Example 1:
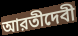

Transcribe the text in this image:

আরতীদেবী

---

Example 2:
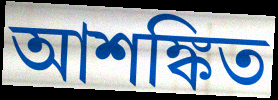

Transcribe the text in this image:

আশঙ্কিত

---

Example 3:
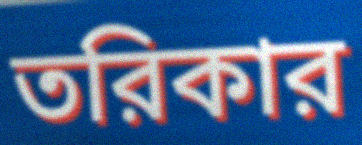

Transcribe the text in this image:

তরিকার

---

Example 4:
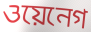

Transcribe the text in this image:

ওয়েনেগ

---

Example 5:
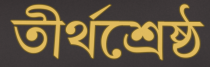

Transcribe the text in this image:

তীর্থশ্রেষ্ঠ